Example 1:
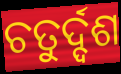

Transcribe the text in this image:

ଚତୁର୍ଦ୍ଦଶ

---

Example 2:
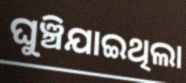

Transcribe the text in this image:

ଘୁଞ୍ଚିଯାଇଥିଲା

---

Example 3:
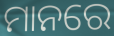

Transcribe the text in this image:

ମାନରେ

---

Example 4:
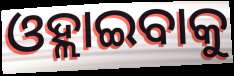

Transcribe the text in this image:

ଓହ୍ଲାଇବାକୁ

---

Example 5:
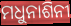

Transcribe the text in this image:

ମଧୁନାଶିନୀ